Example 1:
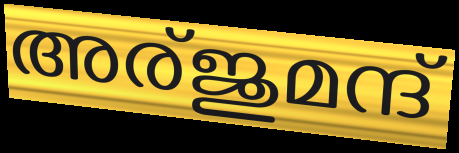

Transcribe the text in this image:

അര്ജുമന്ദ്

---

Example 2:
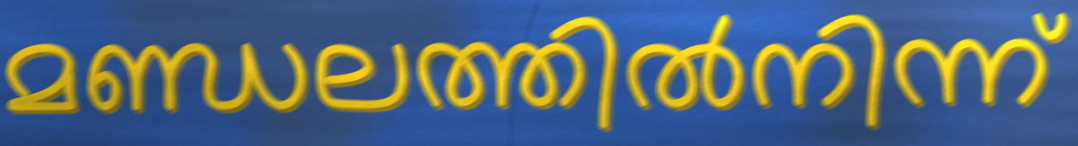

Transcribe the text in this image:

മണ്ഡലത്തിൽനിന്ന്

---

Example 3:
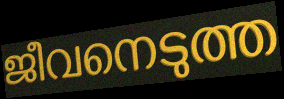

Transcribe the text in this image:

ജീവനെടുത്ത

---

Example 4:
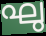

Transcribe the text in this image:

ഘു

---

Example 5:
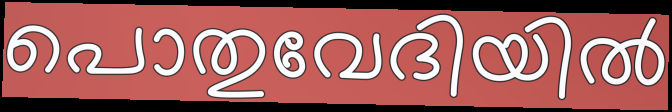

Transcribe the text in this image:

പൊതുവേദിയിൽ